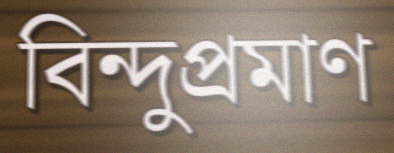
বিন্দুপ্রমাণ